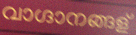
വാഗ്ദാനങ്ങള്